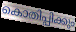
കൊതിപ്പിക്കും